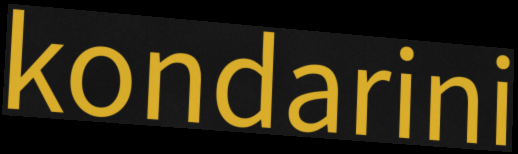
kondarini